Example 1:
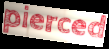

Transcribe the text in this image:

pierced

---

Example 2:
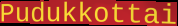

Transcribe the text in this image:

Pudukkottai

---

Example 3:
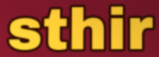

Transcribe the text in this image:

sthir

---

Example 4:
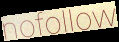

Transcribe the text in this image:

nofollow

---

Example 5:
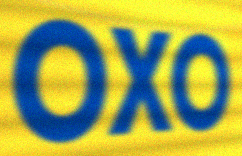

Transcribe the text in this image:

OXO